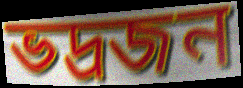
ভদ্রজন